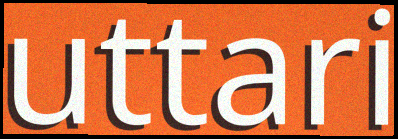
uttari